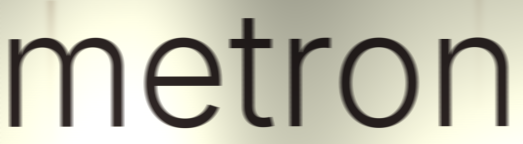
metron